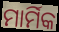
ମାର୍ମିକ